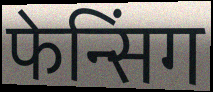
फेन्सिंग